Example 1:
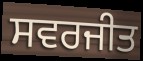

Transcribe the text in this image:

ਸਵਰਜੀਤ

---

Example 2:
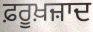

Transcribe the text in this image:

ਫ਼ਰੂਖ਼ਜ਼ਾਦ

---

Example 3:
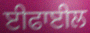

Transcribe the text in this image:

ਈਫਾਈਲ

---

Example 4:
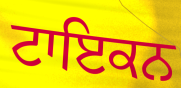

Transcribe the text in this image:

ਟਾਇਕਨ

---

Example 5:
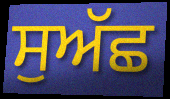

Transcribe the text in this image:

ਸੁਅੱਛ